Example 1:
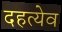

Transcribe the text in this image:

दहत्येव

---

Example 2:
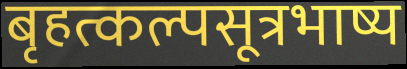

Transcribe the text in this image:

बृहत्कल्पसूत्रभाष्य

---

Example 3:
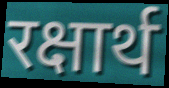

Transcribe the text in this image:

रक्षार्थ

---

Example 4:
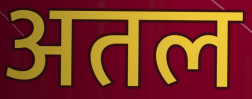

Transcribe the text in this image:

अतल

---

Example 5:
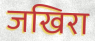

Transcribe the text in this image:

जखिरा